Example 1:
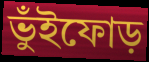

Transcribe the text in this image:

ভুঁইফোড়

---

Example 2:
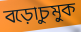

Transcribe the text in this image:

বড়োচুমুক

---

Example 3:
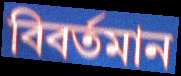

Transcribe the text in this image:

বিবর্তমান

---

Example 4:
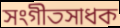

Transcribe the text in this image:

সংগীতসাধক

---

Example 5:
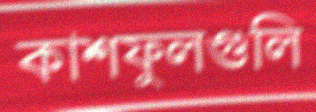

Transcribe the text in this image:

কাশফুলগুলি